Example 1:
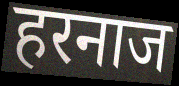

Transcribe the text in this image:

हरनाज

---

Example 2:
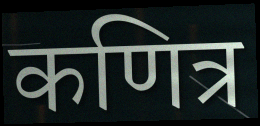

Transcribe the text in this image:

कणित्र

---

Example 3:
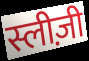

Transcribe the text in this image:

स्लीज़ी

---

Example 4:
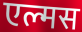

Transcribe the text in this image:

एल्मस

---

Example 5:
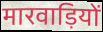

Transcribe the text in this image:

मारवाड़ियों